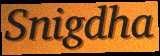
Snigdha